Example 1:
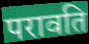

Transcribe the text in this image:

परावति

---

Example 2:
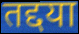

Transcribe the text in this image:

तद्दया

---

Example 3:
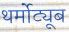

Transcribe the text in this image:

थर्मोट्यूब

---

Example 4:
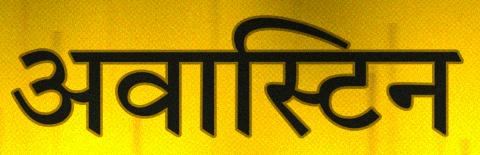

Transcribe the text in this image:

अवास्टिन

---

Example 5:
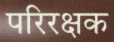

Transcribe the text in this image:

परिरक्षक